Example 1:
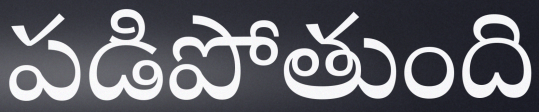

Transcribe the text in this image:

పడిపోతుంది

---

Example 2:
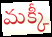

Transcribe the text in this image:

మక్కీ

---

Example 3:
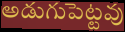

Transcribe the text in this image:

అడుగుపెట్టవు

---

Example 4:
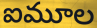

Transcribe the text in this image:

ఐమూల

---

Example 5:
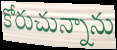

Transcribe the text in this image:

కోరుచున్నాను